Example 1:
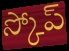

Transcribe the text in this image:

స్కోప్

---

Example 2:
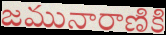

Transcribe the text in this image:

జమునారాణికి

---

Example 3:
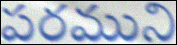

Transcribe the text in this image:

పరముని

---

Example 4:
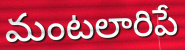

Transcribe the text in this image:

మంటలారిపే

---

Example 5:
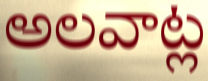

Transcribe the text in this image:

అలవాట్ల